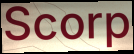
Scorp